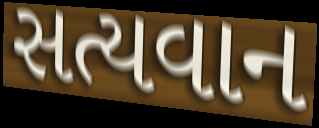
સત્યવાન